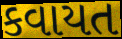
કવાયત